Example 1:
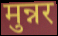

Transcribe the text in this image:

मुन्नर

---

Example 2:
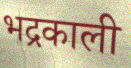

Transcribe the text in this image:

भद्रकाली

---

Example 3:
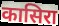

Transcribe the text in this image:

कासिरा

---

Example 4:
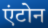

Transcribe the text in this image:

एंटोन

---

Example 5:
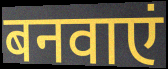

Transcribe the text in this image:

बनवाएं